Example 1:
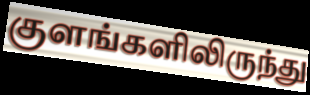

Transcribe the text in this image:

குளங்களிலிருந்து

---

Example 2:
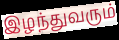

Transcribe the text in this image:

இழந்துவரும்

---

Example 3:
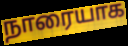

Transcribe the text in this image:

நாரையாக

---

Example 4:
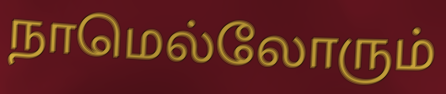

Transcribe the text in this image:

நாமெல்லோரும்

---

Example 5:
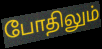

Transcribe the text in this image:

போதிலும்